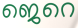
ജെറെ